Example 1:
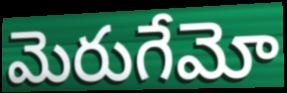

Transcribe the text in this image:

మెరుగేమో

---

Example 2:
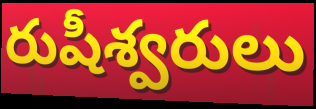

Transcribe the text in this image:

రుషీశ్వరులు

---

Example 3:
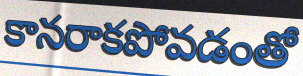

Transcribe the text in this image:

కానరాకపోవడంతో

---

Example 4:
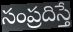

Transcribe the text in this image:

సంప్రదిస్తే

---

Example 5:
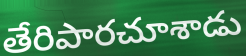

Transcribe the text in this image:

తేరిపారచూశాడు